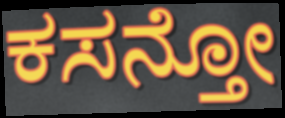
ಕಸನ್ತೋ